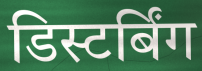
डिस्टर्बिंग